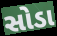
સોડા